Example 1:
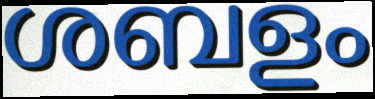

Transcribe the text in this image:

ശബളം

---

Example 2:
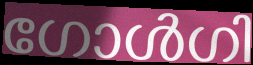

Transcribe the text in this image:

ഗോൾഗി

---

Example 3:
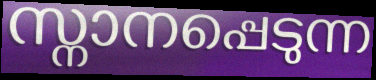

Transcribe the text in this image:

സ്നാനപ്പെടുന്ന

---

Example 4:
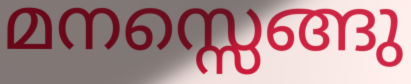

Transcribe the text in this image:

മനസ്സെങ്ങു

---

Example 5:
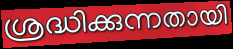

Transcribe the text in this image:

ശ്രദ്ധിക്കുന്നതായി